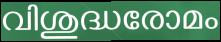
വിശുദ്ധരോമം